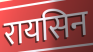
रायसिन